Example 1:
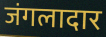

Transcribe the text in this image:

जंगलादार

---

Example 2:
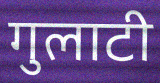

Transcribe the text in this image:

गुलाटी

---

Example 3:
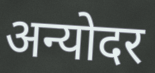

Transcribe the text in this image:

अन्योदर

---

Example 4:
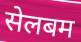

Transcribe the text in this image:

सेलबम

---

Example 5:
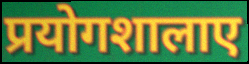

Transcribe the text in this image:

प्रयोगशालाए